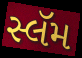
સ્લૅમ